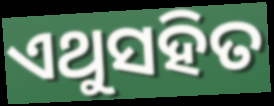
ଏଥୁସହିତ